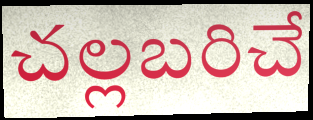
చల్లబరిచే